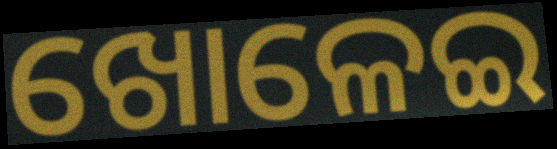
ଖୋଳେଇ